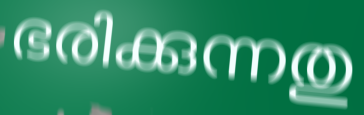
ഭരിക്കുന്നതു